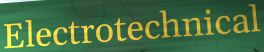
Electrotechnical